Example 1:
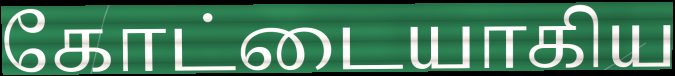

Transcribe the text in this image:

கோட்டையாகிய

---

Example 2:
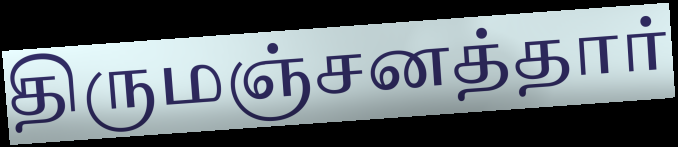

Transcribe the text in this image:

திருமஞ்சனத்தார்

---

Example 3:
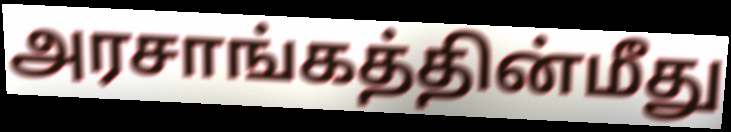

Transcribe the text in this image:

அரசாங்கத்தின்மீது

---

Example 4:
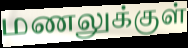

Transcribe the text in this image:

மணலுக்குள்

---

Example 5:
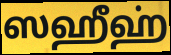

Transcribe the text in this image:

ஸஹீஹ்